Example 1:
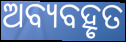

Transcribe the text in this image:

ଅବ୍ୟବହୃତ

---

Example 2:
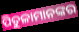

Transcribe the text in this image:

ପିତୁଳାମାନଙ୍କର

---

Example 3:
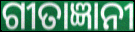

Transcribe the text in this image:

ଗୀତାଜ୍ଞାନୀ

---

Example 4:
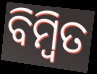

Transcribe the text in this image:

ବିମ୍ବିତ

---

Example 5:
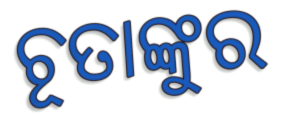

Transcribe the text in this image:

ଚୂତାଙ୍କୁର